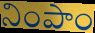
నింపాం